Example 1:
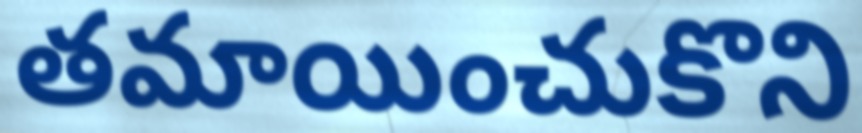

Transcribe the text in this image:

తమాయించుకొని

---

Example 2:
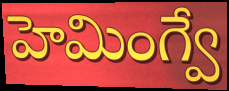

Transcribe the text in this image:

హెమింగ్వే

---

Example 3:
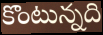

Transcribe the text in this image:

కొంటున్నది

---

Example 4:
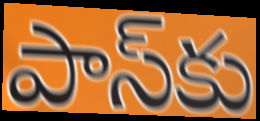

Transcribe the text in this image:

పాస్‌కు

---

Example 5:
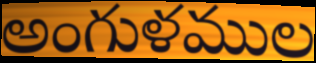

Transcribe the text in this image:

అంగుళముల